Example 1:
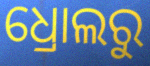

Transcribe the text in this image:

ଧ୍ରୋଲରୁ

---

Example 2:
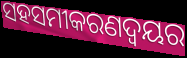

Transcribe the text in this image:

ସହସମୀକରଣଦ୍ୱୟର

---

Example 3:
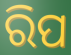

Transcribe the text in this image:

ରିପ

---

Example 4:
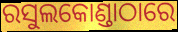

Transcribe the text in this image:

ରସୁଲକୋଣ୍ଡାଠାରେ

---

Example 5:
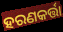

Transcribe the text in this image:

ହରଣକର୍ତ୍ତା